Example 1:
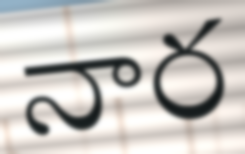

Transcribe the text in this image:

నార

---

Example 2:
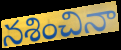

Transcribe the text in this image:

నశించినా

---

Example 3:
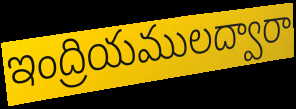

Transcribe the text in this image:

ఇంద్రియములద్వారా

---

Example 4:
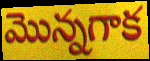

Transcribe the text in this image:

మొన్నగాక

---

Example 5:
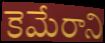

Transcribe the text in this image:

కెమేరాని